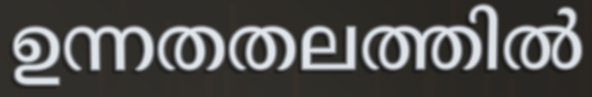
ഉന്നതതലത്തിൽ